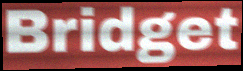
Bridget